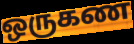
ஒருகண